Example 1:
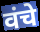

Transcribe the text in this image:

वंचे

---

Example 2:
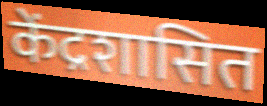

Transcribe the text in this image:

केंद्रशासित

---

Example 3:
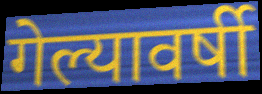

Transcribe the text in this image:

गेल्यावर्षी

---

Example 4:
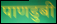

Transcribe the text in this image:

पाणडुबी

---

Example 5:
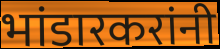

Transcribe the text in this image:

भांडारकरांनी